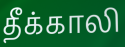
தீக்காலி